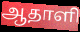
ஆதாளி